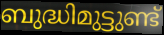
ബുദ്ധിമുട്ടുണ്ട്